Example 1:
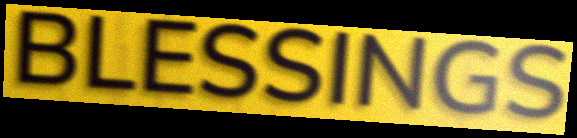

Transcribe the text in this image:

BLESSINGS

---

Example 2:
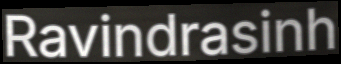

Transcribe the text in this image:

Ravindrasinh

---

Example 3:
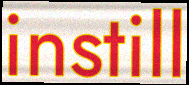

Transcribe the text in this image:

instill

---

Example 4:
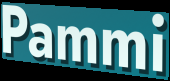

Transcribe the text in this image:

Pammi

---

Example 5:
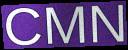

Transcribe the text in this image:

CMN